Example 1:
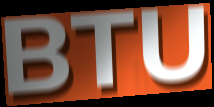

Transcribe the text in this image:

BTU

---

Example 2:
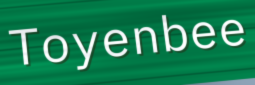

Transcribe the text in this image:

Toyenbee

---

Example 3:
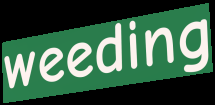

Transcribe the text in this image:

weeding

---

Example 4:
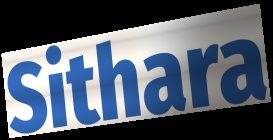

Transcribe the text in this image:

Sithara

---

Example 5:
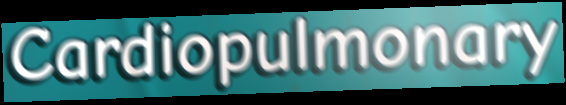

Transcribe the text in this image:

Cardiopulmonary